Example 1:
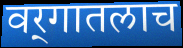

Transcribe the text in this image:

वर्गातलाच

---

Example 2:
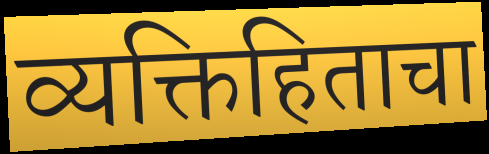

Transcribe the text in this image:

व्यक्तिहिताचा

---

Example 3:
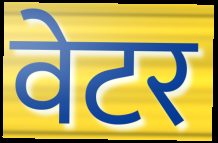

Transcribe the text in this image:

वेटर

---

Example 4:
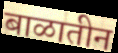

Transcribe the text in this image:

बाळातीन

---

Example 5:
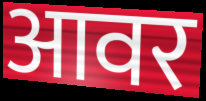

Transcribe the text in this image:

आवर